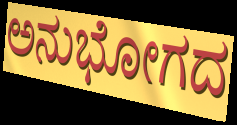
ಅನುಭೋಗದ